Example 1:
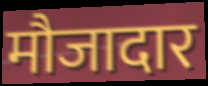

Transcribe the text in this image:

मौजादार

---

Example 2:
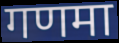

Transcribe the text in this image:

गणमा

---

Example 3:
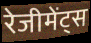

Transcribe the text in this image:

रेजीमेंट्स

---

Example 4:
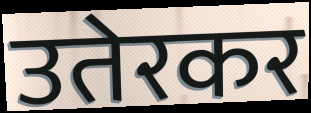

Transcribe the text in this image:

उतेरकर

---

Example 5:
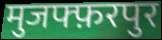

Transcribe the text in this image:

मुजफ्फ़रपुर